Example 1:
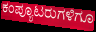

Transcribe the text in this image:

ಕಂಪ್ಯೂಟರುಗಳಿಗೂ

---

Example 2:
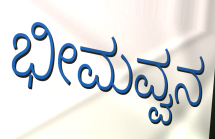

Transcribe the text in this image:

ಭೀಮವ್ವನ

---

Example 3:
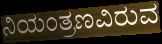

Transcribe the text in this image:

ನಿಯಂತ್ರಣವಿರುವ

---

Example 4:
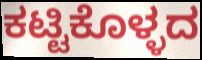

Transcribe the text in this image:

ಕಟ್ಟಿಕೊಳ್ಳದ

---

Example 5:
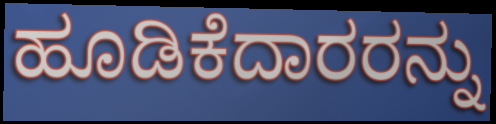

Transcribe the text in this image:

ಹೂಡಿಕೆದಾರರನ್ನು